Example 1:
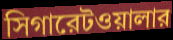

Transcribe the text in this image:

সিগারেটওয়ালার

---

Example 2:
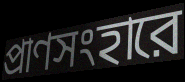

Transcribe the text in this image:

প্রাণসংহারে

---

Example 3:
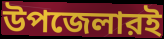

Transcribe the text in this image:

উপজেলারই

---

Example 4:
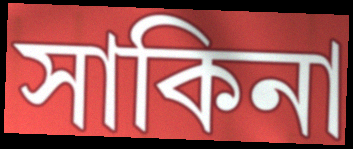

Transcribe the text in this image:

সাকিনা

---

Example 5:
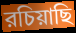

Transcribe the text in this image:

রচিয়াছি